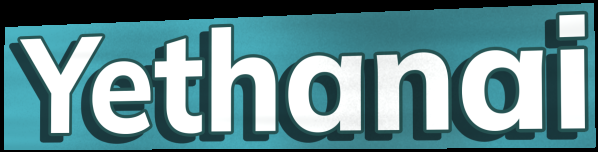
Yethanai